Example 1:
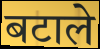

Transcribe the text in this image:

बटाले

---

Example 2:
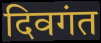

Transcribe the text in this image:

दिवगंत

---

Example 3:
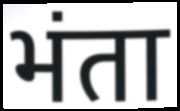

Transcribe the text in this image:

भंता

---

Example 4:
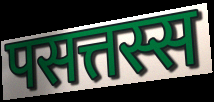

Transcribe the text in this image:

पसत्तस्स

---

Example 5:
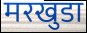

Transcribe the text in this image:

मरखुडा